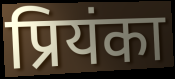
प्रियंका